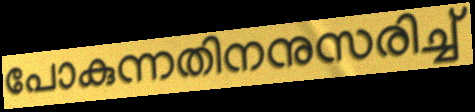
പോകുന്നതിനനുസരിച്ച്